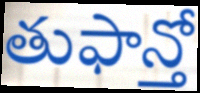
తుఫాన్తో